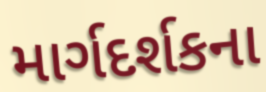
માર્ગદર્શકના